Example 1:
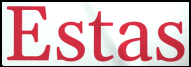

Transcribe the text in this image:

Estas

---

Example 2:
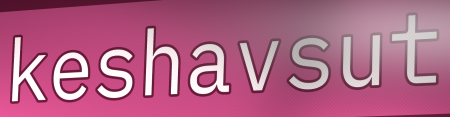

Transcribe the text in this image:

keshavsut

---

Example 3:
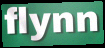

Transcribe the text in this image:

flynn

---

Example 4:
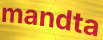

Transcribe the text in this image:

mandta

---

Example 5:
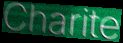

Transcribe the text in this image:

Charite